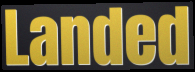
Landed